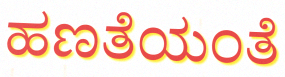
ಹಣತೆಯಂತೆ